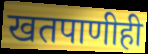
खतपाणीही